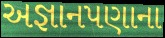
અજ્ઞાનપણાના